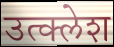
उत्क्लेश